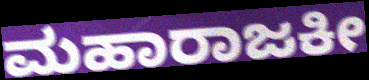
ಮಹಾರಾಜಕೀ